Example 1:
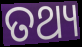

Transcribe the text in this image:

ତଥ୍ୟ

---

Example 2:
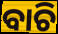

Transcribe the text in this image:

ବାଚି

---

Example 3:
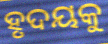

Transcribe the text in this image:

ହୃଦୟକୁ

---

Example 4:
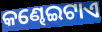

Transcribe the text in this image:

କଣ୍ଢେଇଟାଏ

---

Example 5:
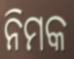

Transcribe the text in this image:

ନିମକ